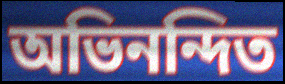
অভিনন্দিত